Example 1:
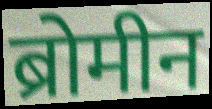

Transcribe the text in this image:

ब्रोमीन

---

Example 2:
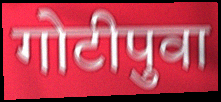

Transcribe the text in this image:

गोटीपुवा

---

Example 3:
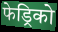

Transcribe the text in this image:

फेड्रिको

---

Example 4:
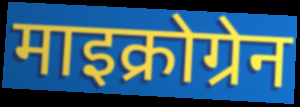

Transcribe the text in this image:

माइक्रोग्रेन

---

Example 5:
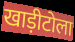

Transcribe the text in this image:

खाड़ीटोला